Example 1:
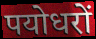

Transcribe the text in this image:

पयोधरों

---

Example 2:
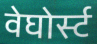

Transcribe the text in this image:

वेघोर्स्ट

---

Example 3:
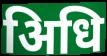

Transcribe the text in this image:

अिधि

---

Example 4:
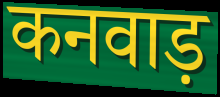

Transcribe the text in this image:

कनवाड़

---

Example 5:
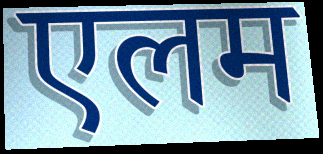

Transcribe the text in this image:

एलम